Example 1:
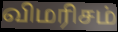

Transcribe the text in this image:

விமரிசம்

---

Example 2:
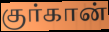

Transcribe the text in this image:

குர்கான்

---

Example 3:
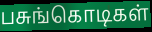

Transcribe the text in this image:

பசுங்கொடிகள்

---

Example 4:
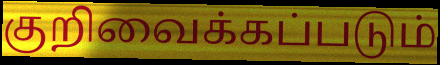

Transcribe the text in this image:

குறிவைக்கப்படும்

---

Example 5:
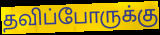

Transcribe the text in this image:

தவிப்போருக்கு